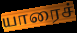
யாரைச்